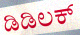
ಡಿಡಿಲಕ್